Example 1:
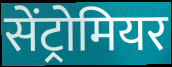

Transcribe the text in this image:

सेंट्रोमियर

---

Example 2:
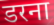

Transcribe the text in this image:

डरना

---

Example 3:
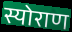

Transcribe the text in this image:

स्योराण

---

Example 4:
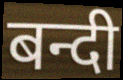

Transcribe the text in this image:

बन्दी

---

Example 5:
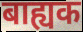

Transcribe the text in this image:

बाह्यक